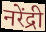
नरेंद्री